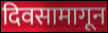
दिवसामागून